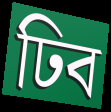
ঢিব